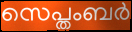
സെപ്തംബർ